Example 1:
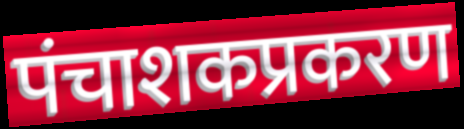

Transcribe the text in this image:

पंचाशकप्रकरण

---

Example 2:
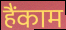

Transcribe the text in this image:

हैंकाम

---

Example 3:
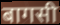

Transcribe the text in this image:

बागसी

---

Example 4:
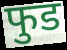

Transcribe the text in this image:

फुड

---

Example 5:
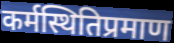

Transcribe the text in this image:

कर्मस्थितिप्रमाण